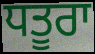
ਧਤੂਰਾ